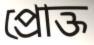
প্রোক্ত